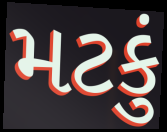
મટકું